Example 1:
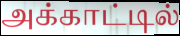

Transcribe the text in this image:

அக்காட்டில்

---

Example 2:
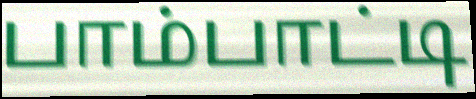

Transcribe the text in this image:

பாம்பாட்டி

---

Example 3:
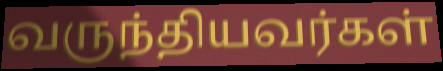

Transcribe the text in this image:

வருந்தியவர்கள்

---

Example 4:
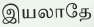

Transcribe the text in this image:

இயலாதே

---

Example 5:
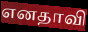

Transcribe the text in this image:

எனதாவி